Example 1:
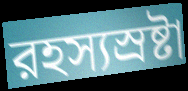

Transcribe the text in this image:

রহস্যস্রষ্টা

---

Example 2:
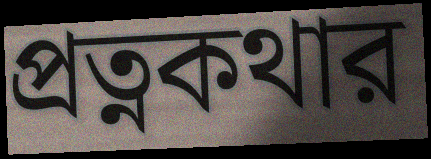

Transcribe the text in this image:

প্রত্নকথার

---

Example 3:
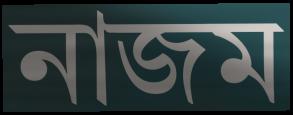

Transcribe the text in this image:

নাজম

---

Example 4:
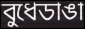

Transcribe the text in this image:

বুধেডাঙা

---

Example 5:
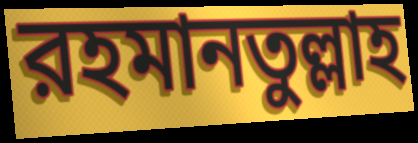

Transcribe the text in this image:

রহমানতুল্লাহ